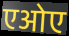
एओए